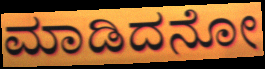
ಮಾಡಿದನೋ